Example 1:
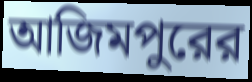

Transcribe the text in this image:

আজিমপুরের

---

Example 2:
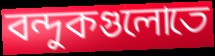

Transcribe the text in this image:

বন্দুকগুলোতে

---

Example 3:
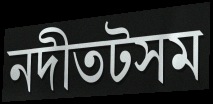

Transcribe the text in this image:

নদীতটসম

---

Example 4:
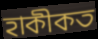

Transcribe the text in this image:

হাকীকত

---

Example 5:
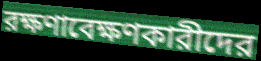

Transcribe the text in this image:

রক্ষণাবেক্ষণকারীদের